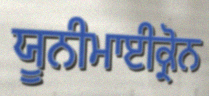
ਯੂਨੀਮਾਈਕ੍ਰੋਨ